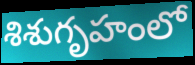
శిశుగృహంలో